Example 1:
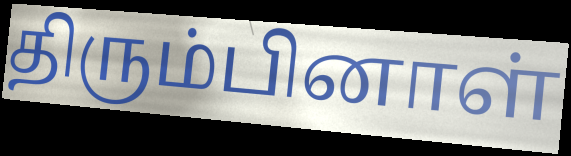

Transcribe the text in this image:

திரும்பினாள்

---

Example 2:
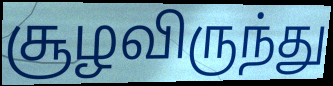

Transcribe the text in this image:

சூழவிருந்து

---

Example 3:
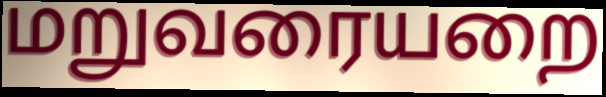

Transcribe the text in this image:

மறுவரையறை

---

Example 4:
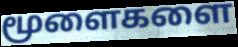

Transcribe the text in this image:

மூளைகளை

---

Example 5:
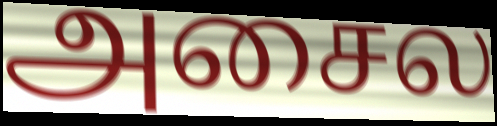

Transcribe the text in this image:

அசைல